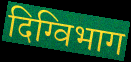
दिग्विभाग